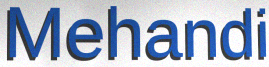
Mehandi